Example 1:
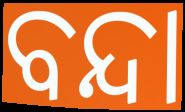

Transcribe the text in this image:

ବନ୍ଦା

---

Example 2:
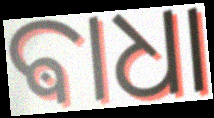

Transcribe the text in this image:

ଵାଧା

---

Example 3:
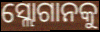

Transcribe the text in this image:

ସ୍ଲୋଗାନକୁ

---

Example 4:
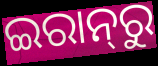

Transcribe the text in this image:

ଇରାନ୍‌ରୁ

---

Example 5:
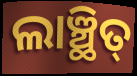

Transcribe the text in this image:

ଲାଞ୍ଛିତ୍